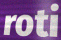
roti